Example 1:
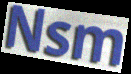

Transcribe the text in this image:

Nsm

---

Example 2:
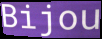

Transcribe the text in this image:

Bijou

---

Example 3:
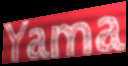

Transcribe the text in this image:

Yama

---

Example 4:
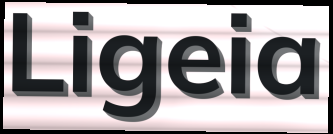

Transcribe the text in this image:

Ligeia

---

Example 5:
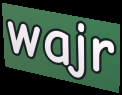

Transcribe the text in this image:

wajr